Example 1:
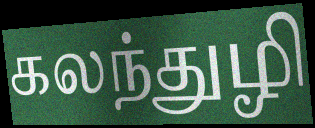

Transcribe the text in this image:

கலந்துழி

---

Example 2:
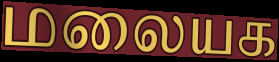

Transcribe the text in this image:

மலையக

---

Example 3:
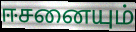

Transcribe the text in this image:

ஈசனையும்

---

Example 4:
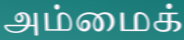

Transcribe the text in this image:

அம்மைக்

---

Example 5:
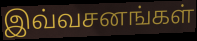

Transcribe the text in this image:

இவ்வசனங்கள்